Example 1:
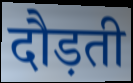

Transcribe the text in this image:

दौड़ती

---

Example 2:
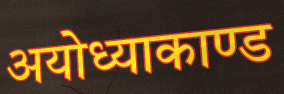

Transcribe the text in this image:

अयोध्याकाण्ड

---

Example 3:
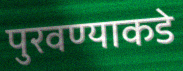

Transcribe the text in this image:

पुरवण्याकडे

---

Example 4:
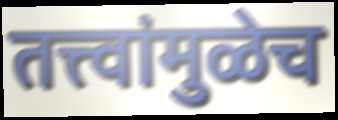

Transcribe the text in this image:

तत्त्वांमुळेच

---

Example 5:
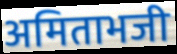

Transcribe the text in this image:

अमिताभजी